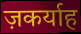
ज़कर्याह